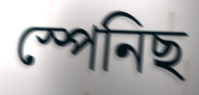
স্পেনিছ